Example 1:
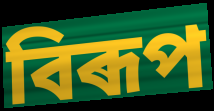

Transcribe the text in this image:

বিৰূপ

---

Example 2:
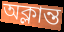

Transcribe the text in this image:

অক্লান্ত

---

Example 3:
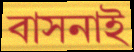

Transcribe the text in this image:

বাসনাই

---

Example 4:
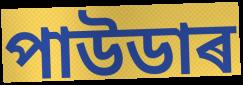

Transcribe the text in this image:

পাউডাৰ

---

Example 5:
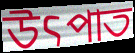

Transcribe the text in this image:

উৎপাত